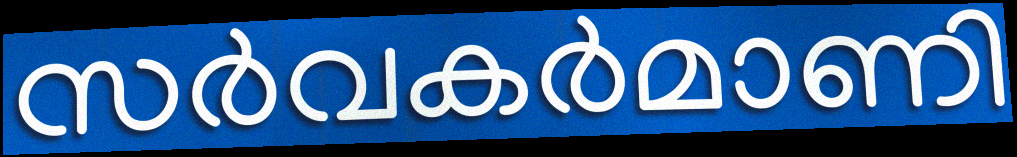
സർവകർമാണി